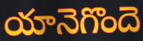
యానెగొందె